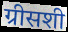
ग्रीसशी